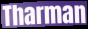
Tharman